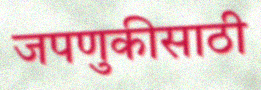
जपणुकीसाठी